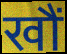
खौं